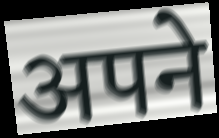
अपने